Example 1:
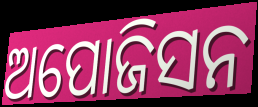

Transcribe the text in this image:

ଅପୋଜିସନ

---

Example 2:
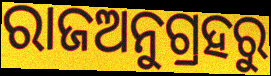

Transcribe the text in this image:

ରାଜଅନୁଗ୍ରହରୁ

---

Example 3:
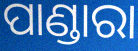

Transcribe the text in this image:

ପାଣ୍ଡାରା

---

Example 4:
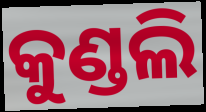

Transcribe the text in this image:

କୁଣ୍ଡଲି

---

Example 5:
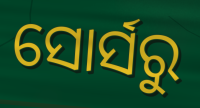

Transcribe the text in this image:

ସୋର୍ସରୁ